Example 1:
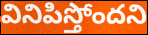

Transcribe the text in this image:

వినిపిస్తోందని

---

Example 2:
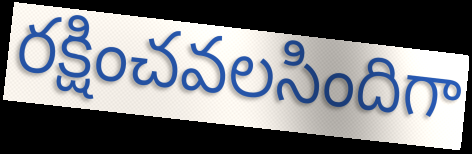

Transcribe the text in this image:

రక్షించవలసిందిగా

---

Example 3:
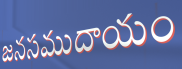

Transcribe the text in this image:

జనసముదాయం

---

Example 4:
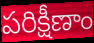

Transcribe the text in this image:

పరిక్షీణాం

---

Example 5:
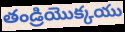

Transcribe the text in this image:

తండ్రియొక్కయు